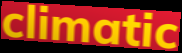
climatic